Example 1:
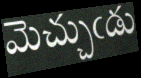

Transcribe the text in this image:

మెచ్చుఁడు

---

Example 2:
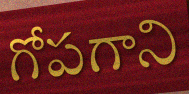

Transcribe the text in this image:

గోపగాని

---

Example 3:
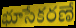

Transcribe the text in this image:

భూసేకరణే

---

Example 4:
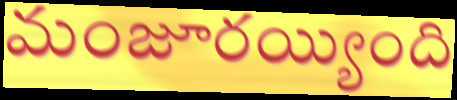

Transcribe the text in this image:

మంజూరయ్యింది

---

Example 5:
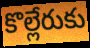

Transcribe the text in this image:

కొల్లేరుకు